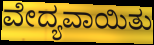
ವೇದ್ಯವಾಯಿತು